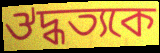
ঔদ্ধত্যকে